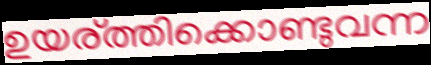
ഉയര്ത്തിക്കൊണ്ടുവന്ന